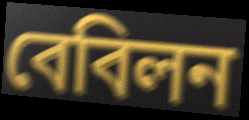
বেবিলন